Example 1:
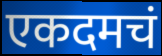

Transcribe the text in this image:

एकदमचं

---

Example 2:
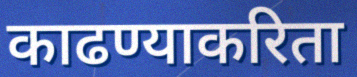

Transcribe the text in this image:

काढण्याकरिता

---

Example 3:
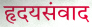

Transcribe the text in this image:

हृदयसंवाद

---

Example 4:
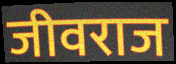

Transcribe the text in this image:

जीवराज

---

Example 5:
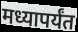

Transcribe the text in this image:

मध्यापर्यंत